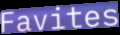
Favites